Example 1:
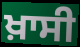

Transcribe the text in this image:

ਖ਼ਾਸੀ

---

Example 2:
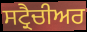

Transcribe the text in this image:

ਸਟ੍ਰੈਚੀਅਰ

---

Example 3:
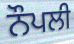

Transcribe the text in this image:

ਨੌਪਲੀ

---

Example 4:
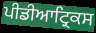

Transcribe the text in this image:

ਪੀਡੀਆਟ੍ਰਿਕਸ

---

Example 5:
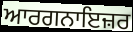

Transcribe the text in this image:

ਆਰਗਨਾਇਜ਼ਰ